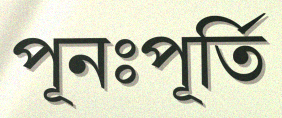
পূনঃপূৰ্তি